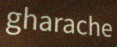
gharache